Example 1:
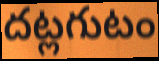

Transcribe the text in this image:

దట్లగుటం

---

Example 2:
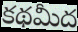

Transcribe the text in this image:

కథమీద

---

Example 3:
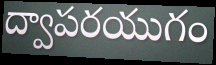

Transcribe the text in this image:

ద్వాపరయుగం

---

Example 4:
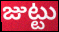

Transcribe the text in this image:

జుట్టు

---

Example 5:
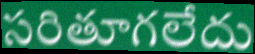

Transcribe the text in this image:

సరితూగలేదు